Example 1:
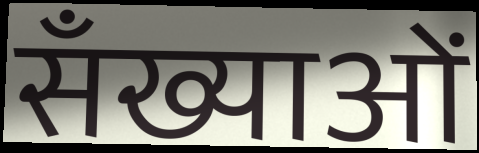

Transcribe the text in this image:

सँख्याओं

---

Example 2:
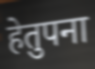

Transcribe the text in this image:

हेतुपना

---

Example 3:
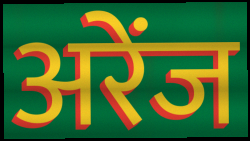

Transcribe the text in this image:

अरेंज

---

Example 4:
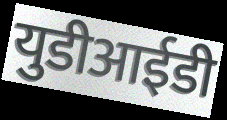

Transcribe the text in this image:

युडीआईडी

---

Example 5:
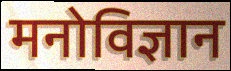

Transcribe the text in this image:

मनोविज्ञान